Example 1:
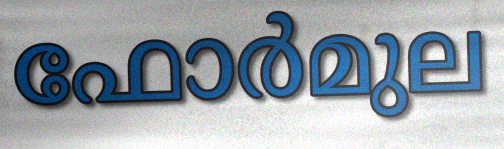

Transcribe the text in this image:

ഫോർമുല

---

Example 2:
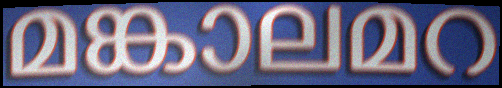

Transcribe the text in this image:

മങ്കാലമറ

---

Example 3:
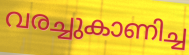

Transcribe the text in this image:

വരച്ചുകാണിച്ച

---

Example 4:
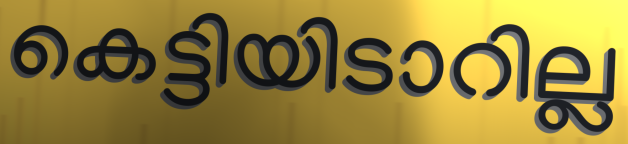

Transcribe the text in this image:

കെട്ടിയിടാറില്ല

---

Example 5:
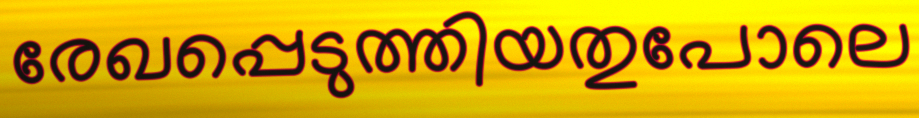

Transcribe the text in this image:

രേഖപ്പെടുത്തിയതുപോലെ